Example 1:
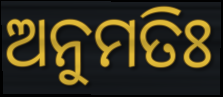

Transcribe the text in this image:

ଅନୁମତିଃ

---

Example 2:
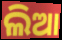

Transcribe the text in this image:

ଲିଆ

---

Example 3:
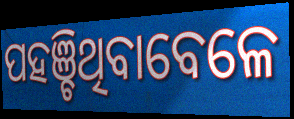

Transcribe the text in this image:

ପହଞ୍ଚିଥିବାବେଳେ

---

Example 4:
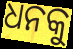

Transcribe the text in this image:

ଧନକୁ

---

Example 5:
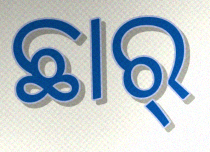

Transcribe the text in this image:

ଛାର୍